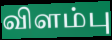
விளம்பு